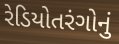
રેડિયોતરંગોનું